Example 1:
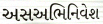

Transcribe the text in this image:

અસઅભિનિવેશ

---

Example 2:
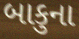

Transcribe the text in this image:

બાકુના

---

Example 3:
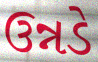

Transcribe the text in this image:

ઉન્નડે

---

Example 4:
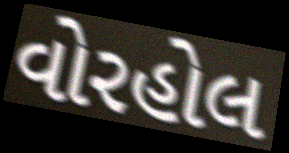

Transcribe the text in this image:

વોરહોલ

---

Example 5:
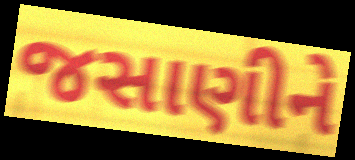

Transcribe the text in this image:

જસાણીને